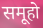
समूहो